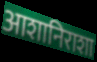
आशानिराशा